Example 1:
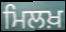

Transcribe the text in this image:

ਮਿਲਖ਼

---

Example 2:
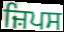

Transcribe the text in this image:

ਜ਼ਿਪਸ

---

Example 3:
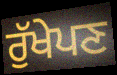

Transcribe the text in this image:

ਰੁੱਖੇਪਣ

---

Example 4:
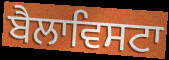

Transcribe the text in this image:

ਬੈਲਾਵਿਸਟਾ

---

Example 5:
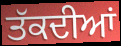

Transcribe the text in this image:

ਤੱਕਦੀਆਂ